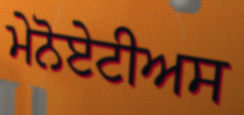
ਮੇਨੋਏਟੀਅਸ